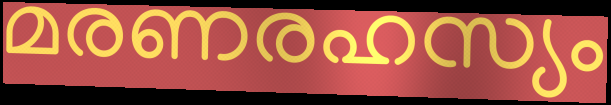
മരണരഹസ്യം